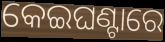
କେଇଘଣ୍ଟାରେ